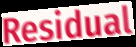
Residual